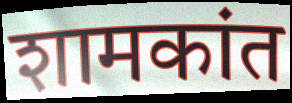
शामकांत